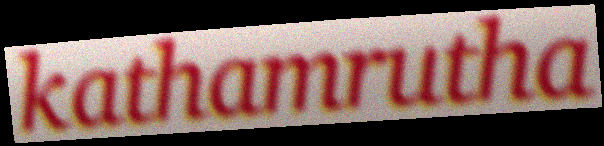
kathamrutha